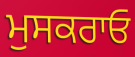
ਮੁਸਕਰਾਓ